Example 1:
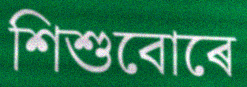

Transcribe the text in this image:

শিশুবোৰে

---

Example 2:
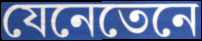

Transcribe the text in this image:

যেনেতেনে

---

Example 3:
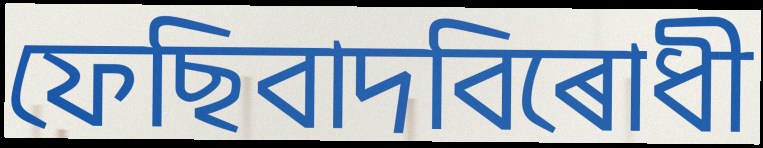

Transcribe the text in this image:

ফেছিবাদবিৰোধী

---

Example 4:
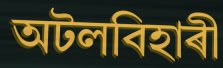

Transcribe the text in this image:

অটলবিহাৰী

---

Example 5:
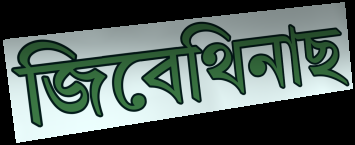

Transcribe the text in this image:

জিবেথিনাছ